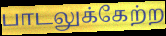
பாடலுக்கேற்ற